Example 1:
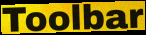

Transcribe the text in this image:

Toolbar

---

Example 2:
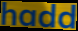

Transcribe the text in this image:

hadd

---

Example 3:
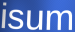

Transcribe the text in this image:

isum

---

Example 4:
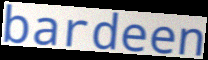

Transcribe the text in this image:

bardeen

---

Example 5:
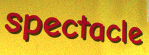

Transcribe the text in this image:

spectacle